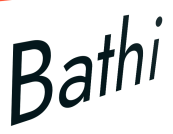
Bathi